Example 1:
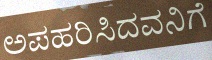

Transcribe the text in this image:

ಅಪಹರಿಸಿದವನಿಗೆ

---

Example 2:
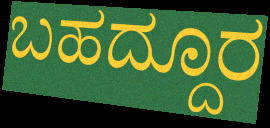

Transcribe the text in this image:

ಬಹದ್ದೂರ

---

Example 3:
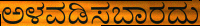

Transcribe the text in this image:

ಅಳವಡಿಸಬಾರದು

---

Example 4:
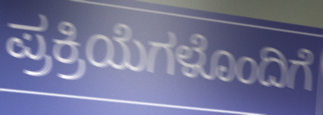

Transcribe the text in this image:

ಪ್ರಕ್ರಿಯೆಗಳೊಂದಿಗೆ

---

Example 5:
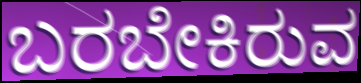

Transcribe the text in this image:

ಬರಬೇಕಿರುವ